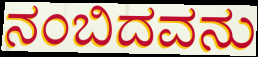
ನಂಬಿದವನು